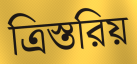
ত্রিস্তরিয়